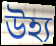
উহ্য